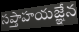
సప్తాహయజ్ఞేన